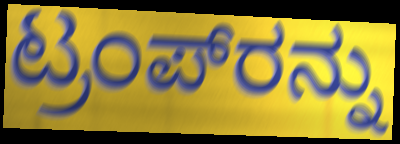
ಟ್ರಂಪ್‌ರನ್ನು